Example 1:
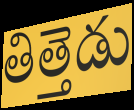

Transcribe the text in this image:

తిత్తెడు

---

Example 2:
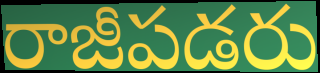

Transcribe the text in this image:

రాజీపడరు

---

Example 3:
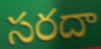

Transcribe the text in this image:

సరదా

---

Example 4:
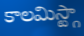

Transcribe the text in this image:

కాలమిస్ట్గా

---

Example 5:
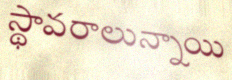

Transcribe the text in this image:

స్థావరాలున్నాయి